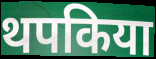
थपकिया